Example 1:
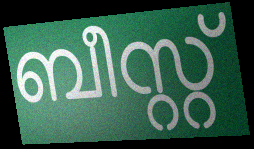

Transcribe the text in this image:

ബീസ്റ്റ്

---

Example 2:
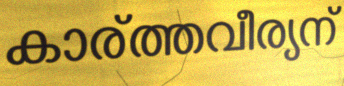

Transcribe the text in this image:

കാര്ത്തവീര്യന്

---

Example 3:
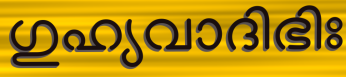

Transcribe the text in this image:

ഗുഹ്യവാദിഭിഃ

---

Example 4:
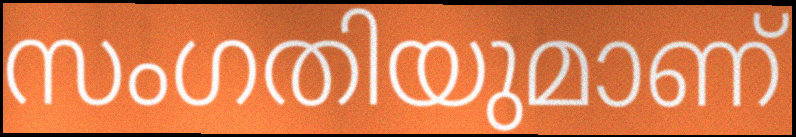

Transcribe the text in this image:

സംഗതിയുമാണ്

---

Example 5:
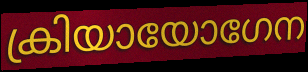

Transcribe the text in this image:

ക്രിയായോഗേന